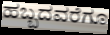
ಹಬ್ಬದವರೆಗೂ